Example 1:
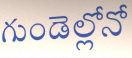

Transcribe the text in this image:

గుండెల్లోనో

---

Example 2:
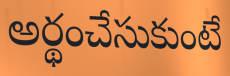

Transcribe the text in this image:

అర్థంచేసుకుంటే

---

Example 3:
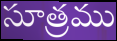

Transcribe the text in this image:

సూత్రము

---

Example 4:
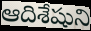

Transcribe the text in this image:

ఆదిశేషుని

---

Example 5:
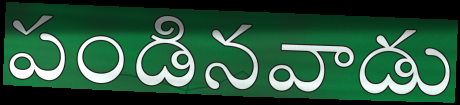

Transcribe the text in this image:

పండినవాడు